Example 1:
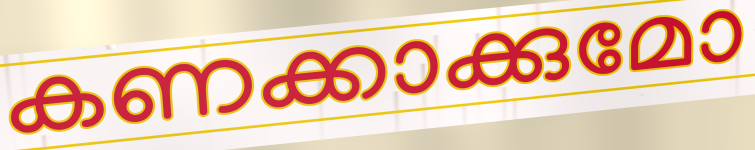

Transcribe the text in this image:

കണക്കാക്കുമോ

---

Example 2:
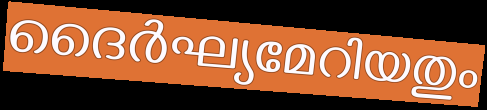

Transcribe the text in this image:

ദൈർഘ്യമേറിയതും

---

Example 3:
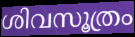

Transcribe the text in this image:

ശിവസൂത്രം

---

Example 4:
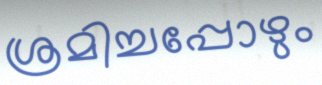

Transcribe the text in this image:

ശ്രമിച്ചപ്പോഴും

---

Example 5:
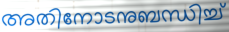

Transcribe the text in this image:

അതിനോടനുബന്ധിച്ച്